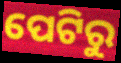
ପେଟିରୁ